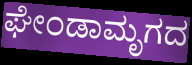
ಘೇಂಡಾಮೃಗದ